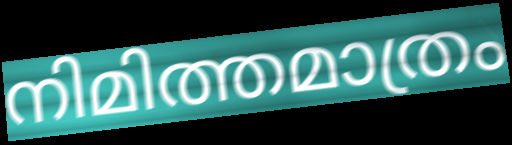
നിമിത്തമാത്രം